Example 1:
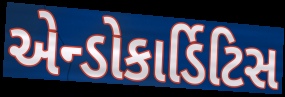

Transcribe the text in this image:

એન્ડોકાર્ડિટિસ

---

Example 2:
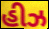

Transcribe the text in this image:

હીઝ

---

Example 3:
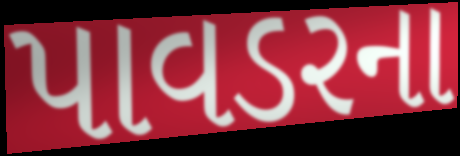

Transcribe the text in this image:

પાવડરના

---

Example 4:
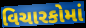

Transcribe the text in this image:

વિચારકોમાં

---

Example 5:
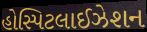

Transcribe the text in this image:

હોસ્પિટલાઈઝેશન